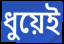
ধুয়েই